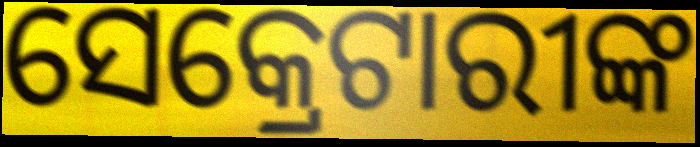
ସେକ୍ରେଟାରୀଙ୍କ